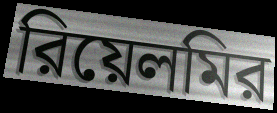
রিয়েলমির